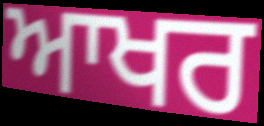
ਆਖਰ